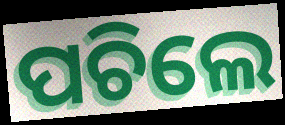
ପଚିଲେ